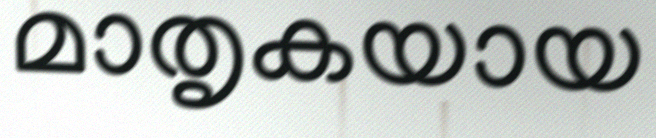
മാതൃകയായ